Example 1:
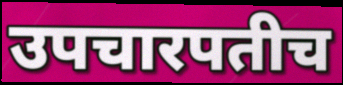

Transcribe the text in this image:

उपचारपतीच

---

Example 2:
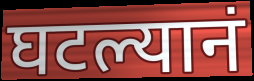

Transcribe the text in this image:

घटल्यानं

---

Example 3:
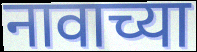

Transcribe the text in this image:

नावाच्या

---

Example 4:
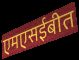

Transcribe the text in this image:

एमएसईबीत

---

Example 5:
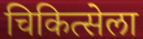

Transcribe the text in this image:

चिकित्सेला